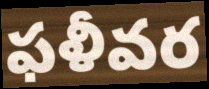
ఫళీవర